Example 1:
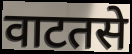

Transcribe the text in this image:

वाटतसे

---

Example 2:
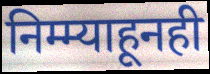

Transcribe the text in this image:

निम्म्याहूनही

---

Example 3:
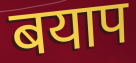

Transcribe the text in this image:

बयाप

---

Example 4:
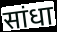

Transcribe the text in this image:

सांधा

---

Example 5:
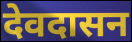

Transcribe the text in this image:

देवदासन